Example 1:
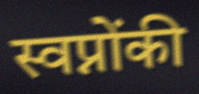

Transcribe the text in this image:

स्वप्नोंकी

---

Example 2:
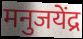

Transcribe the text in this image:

मनुजयेंद्र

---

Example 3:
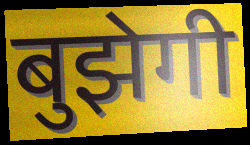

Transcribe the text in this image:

बुझेगी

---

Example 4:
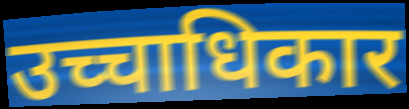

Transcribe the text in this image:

उच्चाधिकार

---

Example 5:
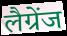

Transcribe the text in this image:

लैग्रेंज